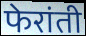
फेरांती